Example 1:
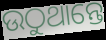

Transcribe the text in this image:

ଉଠୁଥାନ୍ତେ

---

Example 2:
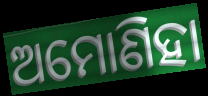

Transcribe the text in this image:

ଅମୋଣିହା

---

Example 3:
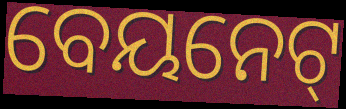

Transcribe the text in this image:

ବେୟନେଟ୍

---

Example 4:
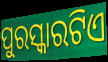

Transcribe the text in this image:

ପୁରସ୍କାରଟିଏ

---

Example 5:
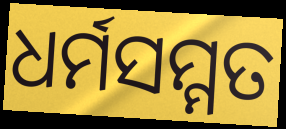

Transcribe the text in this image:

ଧର୍ମସମ୍ମତ